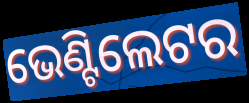
ଭେଣ୍ଟିଲେଟର